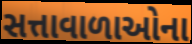
સત્તાવાળાઓના